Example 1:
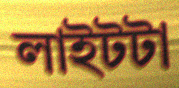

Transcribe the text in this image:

লাইটটা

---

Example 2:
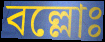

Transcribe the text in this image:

বল্লোঃ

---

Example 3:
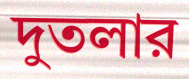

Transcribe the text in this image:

দুতলার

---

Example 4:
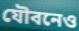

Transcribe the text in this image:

যৌবনেও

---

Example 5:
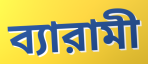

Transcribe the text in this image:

ব্যারামী